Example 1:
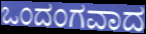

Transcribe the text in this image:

ಒಂದಂಗವಾದ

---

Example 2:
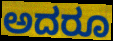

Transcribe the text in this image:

ಅದರೂ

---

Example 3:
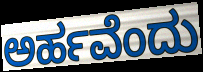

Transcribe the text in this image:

ಅರ್ಹವೆಂದು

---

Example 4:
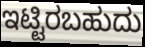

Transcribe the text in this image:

ಇಟ್ಟಿರಬಹುದು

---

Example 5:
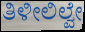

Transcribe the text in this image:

ತಿಳೀಲಿಲ್ವೇ